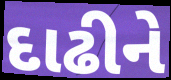
દાઢીને